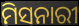
ମିସନାରୀ